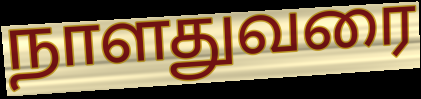
நாளதுவரை